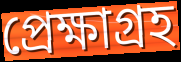
প্রেক্ষাগ্রহ